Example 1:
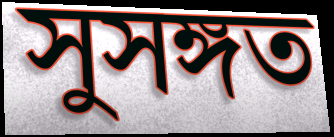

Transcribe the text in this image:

সুসঙ্গত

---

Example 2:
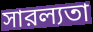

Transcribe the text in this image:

সারল্যতা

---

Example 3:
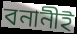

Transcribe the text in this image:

বনানীই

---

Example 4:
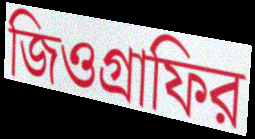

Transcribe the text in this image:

জিওগ্রাফির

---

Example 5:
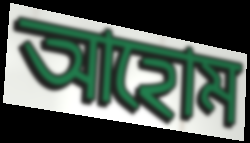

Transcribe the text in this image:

আহোম